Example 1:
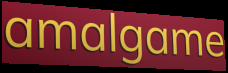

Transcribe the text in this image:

amalgame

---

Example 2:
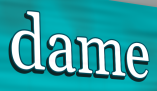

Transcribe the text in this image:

dame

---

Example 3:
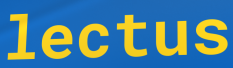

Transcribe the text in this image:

lectus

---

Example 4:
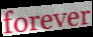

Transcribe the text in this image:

forever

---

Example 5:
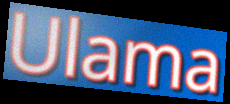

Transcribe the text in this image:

Ulama